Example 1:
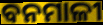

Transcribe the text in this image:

ବନମାଳୀ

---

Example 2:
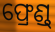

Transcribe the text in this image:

ଫ୍ରେଣ୍ଡ୍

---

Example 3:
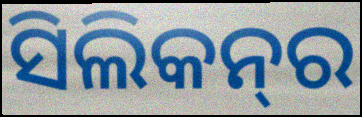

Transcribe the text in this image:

ସିଲିକନ୍‌ର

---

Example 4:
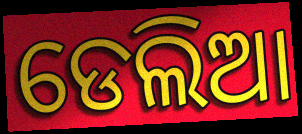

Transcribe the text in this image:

ଡେଲିଆ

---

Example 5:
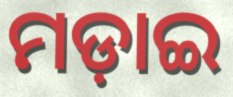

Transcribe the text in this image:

ମଡ଼ାଇ